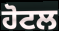
ਹੋਟਲ